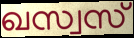
ഖസ്വസ്